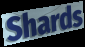
Shards